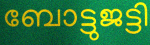
ബോട്ടുജട്ടി